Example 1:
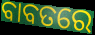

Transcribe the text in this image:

ବାବତରେ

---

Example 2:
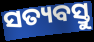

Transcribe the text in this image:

ସତ୍ୟବସ୍ତୁ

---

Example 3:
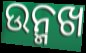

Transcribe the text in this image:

ଉନ୍ମଖ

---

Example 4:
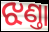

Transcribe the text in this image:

ଝଣ୍ତା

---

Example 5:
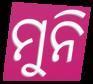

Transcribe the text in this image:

ମୁନି